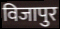
विजापुर